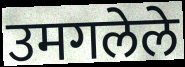
उमगलेले